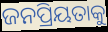
ଜନପ୍ରିୟତାକୁ